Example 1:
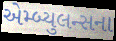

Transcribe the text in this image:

એમ્બ્યુલન્સના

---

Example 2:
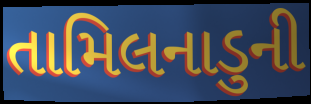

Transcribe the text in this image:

તામિલનાડુની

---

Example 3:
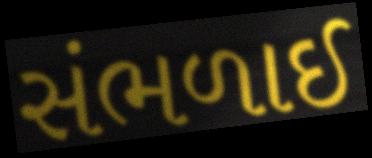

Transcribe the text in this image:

સંભળાઈ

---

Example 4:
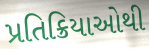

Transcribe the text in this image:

પ્રતિક્રિયાઓથી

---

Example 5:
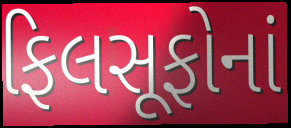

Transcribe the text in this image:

ફિલસૂફોનાં